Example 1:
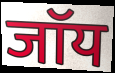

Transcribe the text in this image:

जॉय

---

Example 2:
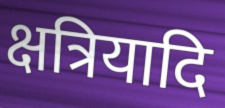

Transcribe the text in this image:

क्षत्रियादि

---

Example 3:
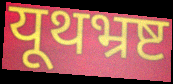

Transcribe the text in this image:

यूथभ्रष्ट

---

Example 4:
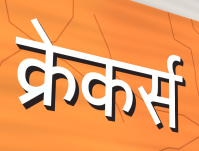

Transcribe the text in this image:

क्रेकर्स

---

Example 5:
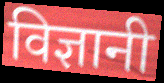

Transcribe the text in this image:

विज्ञानी